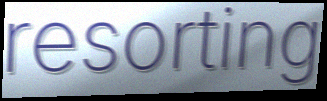
resorting